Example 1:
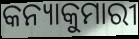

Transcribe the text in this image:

କନ୍ୟାକୁମାରୀ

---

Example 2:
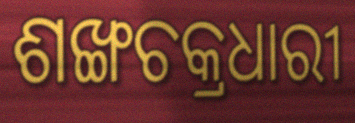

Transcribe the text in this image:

ଶଙ୍ଖଚକ୍ରଧାରୀ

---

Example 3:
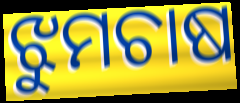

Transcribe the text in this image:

ଝୁମଚାଷ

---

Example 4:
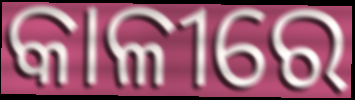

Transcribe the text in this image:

କାଳୀରେ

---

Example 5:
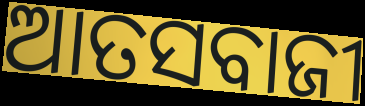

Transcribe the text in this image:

ଆତସବାଜୀ